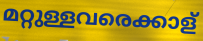
മറ്റുള്ളവരെക്കാള്